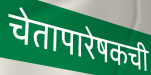
चेतापारेषकची